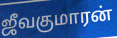
ஜீவகுமாரன்